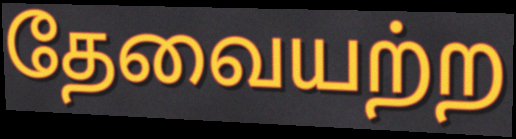
தேவையற்ற